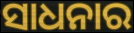
ସାଧନାର